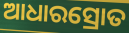
ଆଧାରସ୍ରୋତ